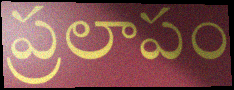
ప్రలాపం